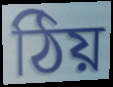
ঠিয়